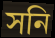
সনি